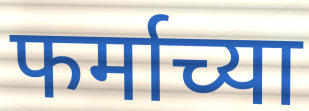
फर्माच्या